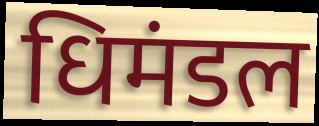
धिमंडल